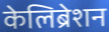
केलिब्रेशन